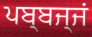
ਪਬ੍ਬਜ੍ਜਂ